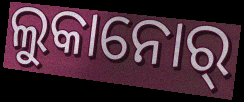
ଲୁକାନୋର୍